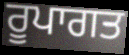
ਰੂਪਾਗਤ